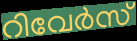
റിവേർസ്